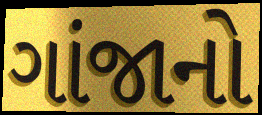
ગાંજાનો